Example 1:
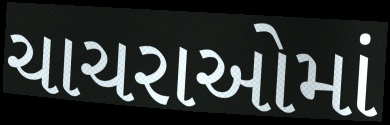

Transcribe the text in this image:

ચાચરાઓમાં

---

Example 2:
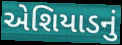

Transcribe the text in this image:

એશિયાડનું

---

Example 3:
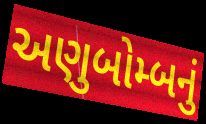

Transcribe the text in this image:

અણુબોમ્બનું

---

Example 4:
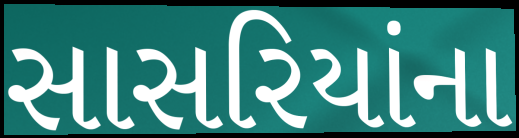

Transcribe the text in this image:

સાસરિયાંના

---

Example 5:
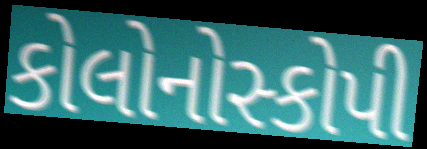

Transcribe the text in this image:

કોલોનોસ્કોપી